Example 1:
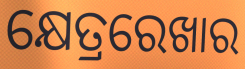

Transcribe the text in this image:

କ୍ଷେତ୍ରରେଖାର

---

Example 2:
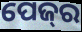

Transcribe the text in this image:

ପେଜ୍‌ର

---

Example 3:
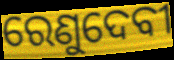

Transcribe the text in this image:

ରେଣୁଦେବୀ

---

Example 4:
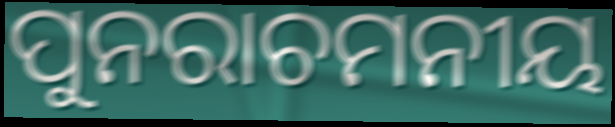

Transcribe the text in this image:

ପୁନରାଚମନୀୟ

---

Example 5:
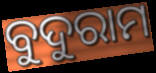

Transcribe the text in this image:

ବୁଦୁରାମ